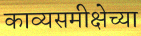
काव्यसमीक्षेच्या